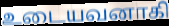
உடையவனாகி